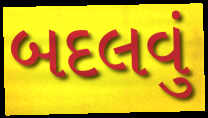
બદલવું